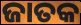
ଜାତକ